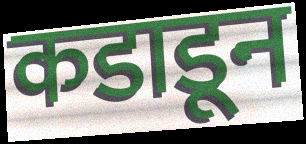
कडाडून